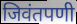
जिवंतपणी